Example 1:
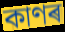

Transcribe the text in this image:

কাণৰ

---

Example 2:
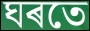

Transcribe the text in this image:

ঘৰতে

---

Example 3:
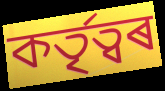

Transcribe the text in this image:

কৰ্তৃত্বৰ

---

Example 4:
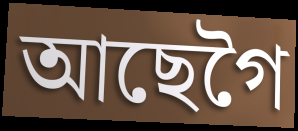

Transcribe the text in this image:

আছেগৈ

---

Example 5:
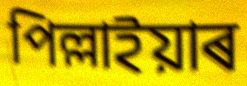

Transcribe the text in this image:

পিল্লাইয়াৰ